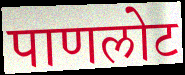
पाणलोट